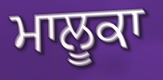
ਮਾਲੂਕਾ